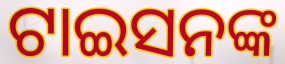
ଟାଇସନଙ୍କ